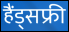
हैंड्सफ्री